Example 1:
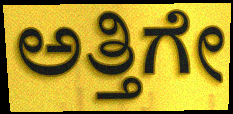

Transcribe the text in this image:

ಅತ್ತಿಗೇ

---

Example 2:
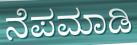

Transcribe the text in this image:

ನೆಪಮಾಡಿ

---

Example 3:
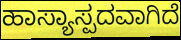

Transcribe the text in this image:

ಹಾಸ್ಯಾಸ್ಪದವಾಗಿದೆ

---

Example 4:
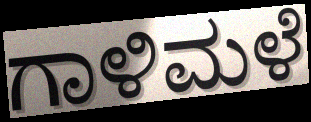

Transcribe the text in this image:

ಗಾಳಿಮಳೆ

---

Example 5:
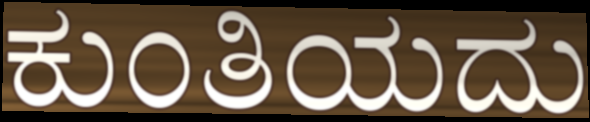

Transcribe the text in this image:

ಕುಂತಿಯದು